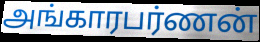
அங்காரபர்ணன்